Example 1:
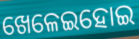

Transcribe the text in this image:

ଖେଳେଇହୋଇ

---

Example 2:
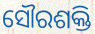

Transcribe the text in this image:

ସୌରଶକ୍ତି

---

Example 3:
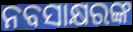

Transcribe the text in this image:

ନବସାକ୍ଷରଙ୍କ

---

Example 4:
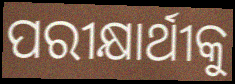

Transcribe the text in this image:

ପରୀକ୍ଷାର୍ଥୀକୁ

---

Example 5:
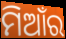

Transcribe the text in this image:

ମିଆଁର